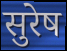
सुरेष